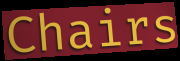
Chairs